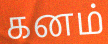
கனம்